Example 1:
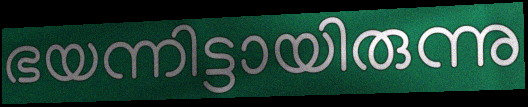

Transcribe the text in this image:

ഭയന്നിട്ടായിരുന്നു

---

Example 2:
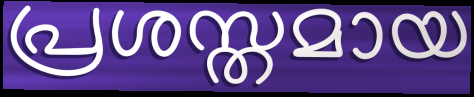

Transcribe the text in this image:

പ്രശസ്തമായ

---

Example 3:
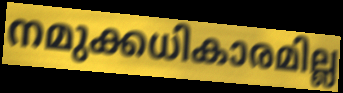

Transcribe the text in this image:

നമുക്കധികാരമില്ല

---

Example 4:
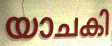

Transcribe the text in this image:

യാചകി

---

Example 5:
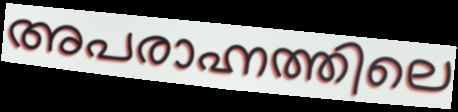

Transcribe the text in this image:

അപരാഹ്നത്തിലെ